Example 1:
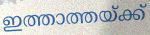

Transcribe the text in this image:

ഇത്താത്തയ്ക്ക്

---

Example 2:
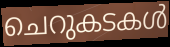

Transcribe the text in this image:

ചെറുകടകൾ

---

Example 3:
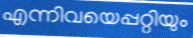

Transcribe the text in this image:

എന്നിവയെപ്പറ്റിയും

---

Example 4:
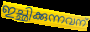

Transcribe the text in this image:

ഇച്ഛിക്കുന്നവന്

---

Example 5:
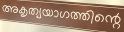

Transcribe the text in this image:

അകൃത്യയാഗത്തിന്റെ